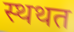
स्थथत